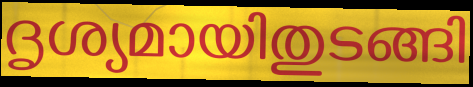
ദൃശ്യമായിതുടങ്ങി